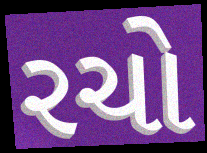
રચો